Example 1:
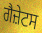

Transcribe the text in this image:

ਗੈਜ਼ੇਟਸ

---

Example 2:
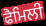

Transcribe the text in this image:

ਫੈਮਿਲੀ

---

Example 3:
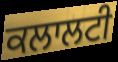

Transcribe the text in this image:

ਕਲਾਲਟੀ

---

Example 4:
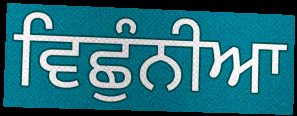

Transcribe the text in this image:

ਵਿਛੁੰਨੀਆ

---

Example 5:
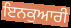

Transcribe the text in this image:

ਇਨਕੁਆਰੀ